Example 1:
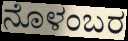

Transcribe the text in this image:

ನೊಳಂಬರ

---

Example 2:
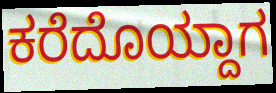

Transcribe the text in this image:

ಕರೆದೊಯ್ದಾಗ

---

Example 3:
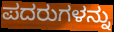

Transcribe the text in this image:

ಪದರುಗಳನ್ನು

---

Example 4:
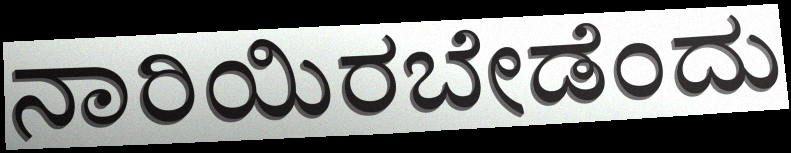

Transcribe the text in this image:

ನಾರಿಯಿರಬೇಡೆಂದು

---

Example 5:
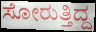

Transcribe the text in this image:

ಸೋರುತ್ತಿದ್ದ